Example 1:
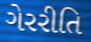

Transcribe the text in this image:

ગેરરીતિ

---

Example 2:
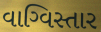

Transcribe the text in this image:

વાગ્વિસ્તાર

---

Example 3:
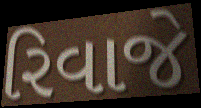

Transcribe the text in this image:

રિવાજે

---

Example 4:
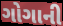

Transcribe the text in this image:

ગોગાની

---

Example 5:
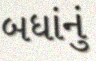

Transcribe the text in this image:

બધાંનું